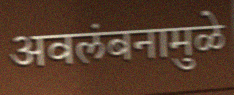
अवलंबनामुळे